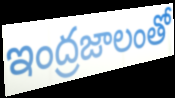
ఇంద్రజాలంతో